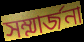
সম্মার্জনা